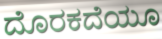
ದೊರಕದೆಯೂ